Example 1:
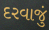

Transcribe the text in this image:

દરવાજું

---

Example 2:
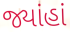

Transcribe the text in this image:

જ્યાંહાં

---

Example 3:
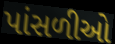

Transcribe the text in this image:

પાંસળીઓ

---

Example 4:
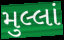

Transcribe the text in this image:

મુલ્લાં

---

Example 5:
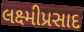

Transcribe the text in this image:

લક્ષ્મીપ્રસાદ